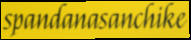
spandanasanchike